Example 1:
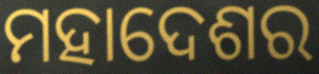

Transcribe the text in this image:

ମହାଦେଶର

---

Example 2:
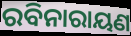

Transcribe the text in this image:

ରବିନାରାୟଣ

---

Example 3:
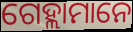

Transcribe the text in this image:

ଗେହ୍ଲାମାନେ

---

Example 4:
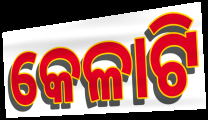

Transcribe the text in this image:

କେଳାଟି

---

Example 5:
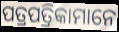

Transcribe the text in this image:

ପତ୍ରପତ୍ରିକାମାନେ